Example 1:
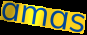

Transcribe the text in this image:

amas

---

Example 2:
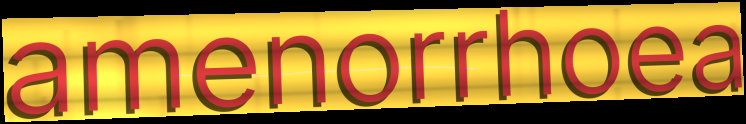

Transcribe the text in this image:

amenorrhoea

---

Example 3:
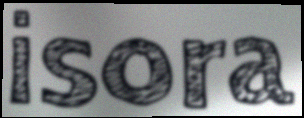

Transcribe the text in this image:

isora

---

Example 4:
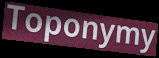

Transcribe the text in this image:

Toponymy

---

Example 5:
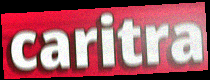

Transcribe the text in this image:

caritra